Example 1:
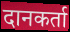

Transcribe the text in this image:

दानकर्ता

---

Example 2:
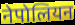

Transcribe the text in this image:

नेपोलियन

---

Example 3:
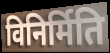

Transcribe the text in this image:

विनिर्मिति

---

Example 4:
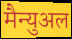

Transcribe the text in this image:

मैन्युअल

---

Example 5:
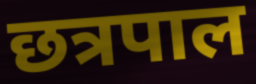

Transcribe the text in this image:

छत्रपाल